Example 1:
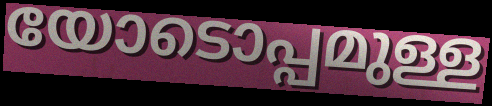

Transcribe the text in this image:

യോടൊപ്പമുള്ള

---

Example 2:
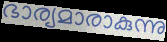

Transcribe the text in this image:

ഭാര്യമാരാകുന്നു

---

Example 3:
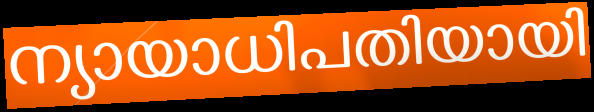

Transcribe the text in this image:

ന്യായാധിപതിയായി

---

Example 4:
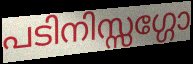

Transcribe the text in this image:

പടിനിസ്സഗ്ഗോ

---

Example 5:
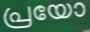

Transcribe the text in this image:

പ്രയോ